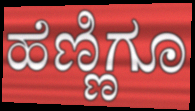
ಹೆಣ್ಣಿಗೂ